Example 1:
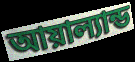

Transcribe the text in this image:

আয়াল্যান্ড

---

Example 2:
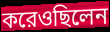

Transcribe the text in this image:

করেওছিলেন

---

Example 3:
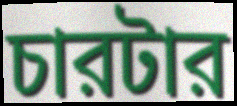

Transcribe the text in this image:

চারটার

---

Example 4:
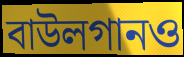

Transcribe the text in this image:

বাউলগানও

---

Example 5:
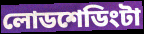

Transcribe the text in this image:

লোডশেডিংটা